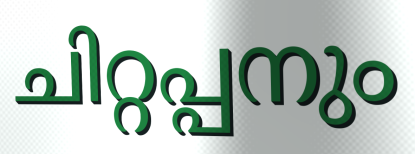
ചിറ്റപ്പനും